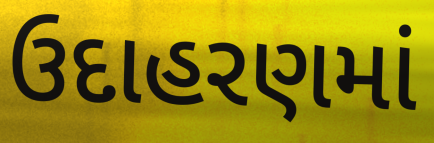
ઉદાહરણમાં